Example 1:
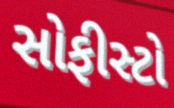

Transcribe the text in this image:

સોફીસ્ટો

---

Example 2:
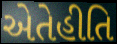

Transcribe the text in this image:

એતેહીતિ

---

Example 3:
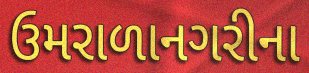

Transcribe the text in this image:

ઉમરાળાનગરીના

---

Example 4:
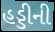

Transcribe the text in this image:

હડ્ડીની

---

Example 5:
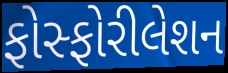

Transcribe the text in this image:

ફોસ્ફોરીલેશન